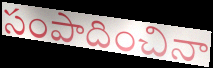
సంపాదించినా